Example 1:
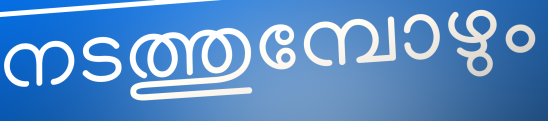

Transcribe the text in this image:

നടത്തുമ്പോഴും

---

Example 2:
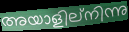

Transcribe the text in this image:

അയാളില്നിന്നു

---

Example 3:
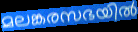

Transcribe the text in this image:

മലങ്കരസഭയിൽ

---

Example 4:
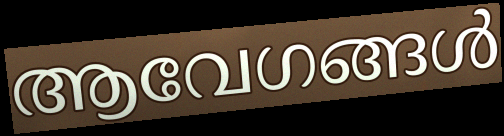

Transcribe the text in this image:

ആവേഗങ്ങൾ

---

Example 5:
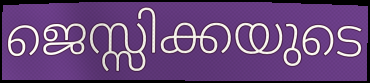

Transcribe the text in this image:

ജെസ്സിക്കയുടെ